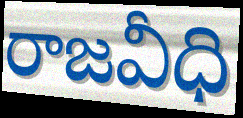
రాజవీధి